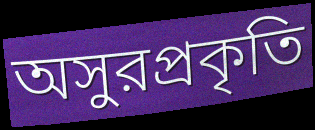
অসুরপ্রকৃতি